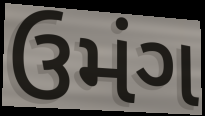
ઉમંગ